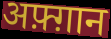
अफ़्ग़ान